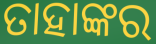
ତାହାଙ୍କର